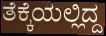
ತೆಕ್ಕೆಯಲ್ಲಿದ್ದ